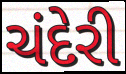
ચંદેરી